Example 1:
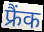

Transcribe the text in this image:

फ्रैंक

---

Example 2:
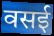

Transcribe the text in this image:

वसई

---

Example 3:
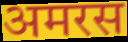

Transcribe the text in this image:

अमरस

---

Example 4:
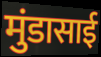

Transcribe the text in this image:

मुंडासाई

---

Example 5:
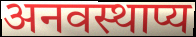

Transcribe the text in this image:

अनवस्थाप्य